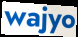
wajyo